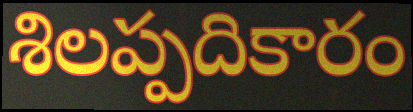
శిలప్పదికారం